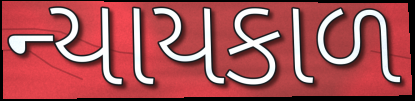
ન્યાયકાળ